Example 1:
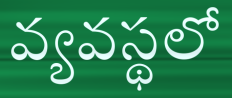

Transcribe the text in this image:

వ్యవస్థలో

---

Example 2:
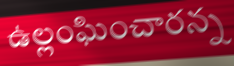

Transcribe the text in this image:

ఉల్లంఘించారన్న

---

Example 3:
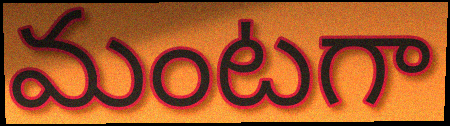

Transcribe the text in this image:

మంటగా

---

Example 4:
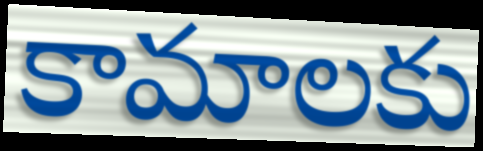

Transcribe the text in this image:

కామాలకు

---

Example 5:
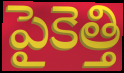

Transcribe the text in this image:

పైకెత్తి